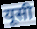
यूसी